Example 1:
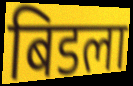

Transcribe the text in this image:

बिडला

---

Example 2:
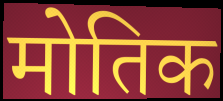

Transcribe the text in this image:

मोतिक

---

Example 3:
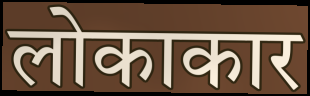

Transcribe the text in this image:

लोकाकार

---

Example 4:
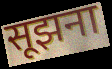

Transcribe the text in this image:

सूझना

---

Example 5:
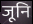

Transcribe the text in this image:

जूनि